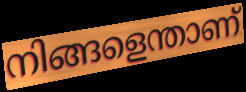
നിങ്ങളെന്താണ്